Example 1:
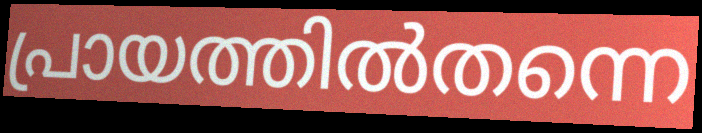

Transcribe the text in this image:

പ്രായത്തിൽതന്നെ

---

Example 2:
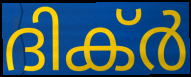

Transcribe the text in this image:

ദിക്ർ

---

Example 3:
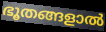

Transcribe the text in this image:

ഭൂതങ്ങളാൽ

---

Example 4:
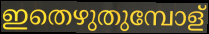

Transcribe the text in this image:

ഇതെഴുതുമ്പോള്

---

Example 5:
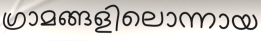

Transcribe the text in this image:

ഗ്രാമങ്ങളിലൊന്നായ